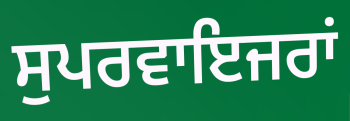
ਸੁਪਰਵਾਇਜਰਾਂ